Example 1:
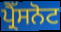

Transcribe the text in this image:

ਪ੍ਰੈੱਸਨੋਟ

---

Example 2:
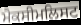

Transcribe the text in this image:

ਮੈਕਸੀਮਲਿਸਟ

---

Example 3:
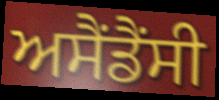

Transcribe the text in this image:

ਅਸੈਂਡੈਂਸੀ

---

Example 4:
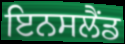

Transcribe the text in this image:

ਇਨਸਲੈਂਡ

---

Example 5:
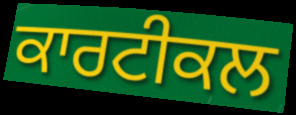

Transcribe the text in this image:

ਕਾਰਟੀਕਲ